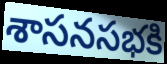
శాసనసభకి